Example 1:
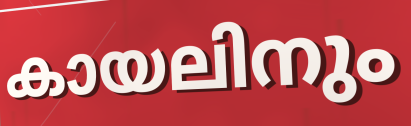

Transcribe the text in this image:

കായലിനും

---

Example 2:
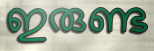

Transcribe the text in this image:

ഇരുണ്ട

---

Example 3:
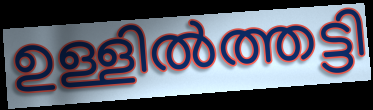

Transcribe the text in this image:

ഉള്ളിൽത്തട്ടി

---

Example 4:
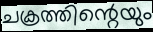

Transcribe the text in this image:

ചക്രത്തിന്റെയും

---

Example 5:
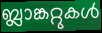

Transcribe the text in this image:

ബ്ലാങ്കറ്റുകൾ